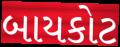
બાયકોટ